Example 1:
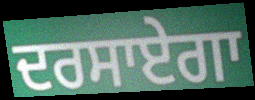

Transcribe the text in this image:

ਦਰਸਾਏਗਾ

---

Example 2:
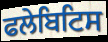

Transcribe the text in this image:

ਫਲੇਬਿਟਿਸ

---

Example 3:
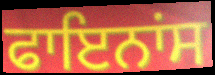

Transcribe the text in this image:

ਫਾਇਨਾਂਸ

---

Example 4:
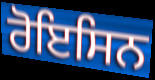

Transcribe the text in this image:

ਰੋਇਸਿਨ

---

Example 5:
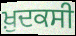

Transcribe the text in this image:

ਖ਼ੁਦਕਸੀ